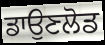
ਡਾਉਣਲੋਡ